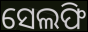
ସେଲଫି